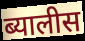
ब्यालीस